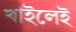
খাইলেই